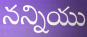
నన్నియు